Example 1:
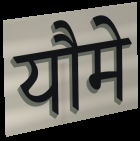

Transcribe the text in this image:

यौमे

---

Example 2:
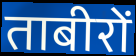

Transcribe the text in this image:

ताबीरों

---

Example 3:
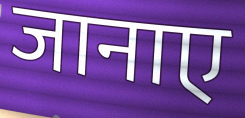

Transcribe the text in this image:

जानाए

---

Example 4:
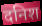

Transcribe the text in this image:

दनिश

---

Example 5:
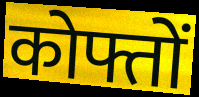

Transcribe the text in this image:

कोफ्तों